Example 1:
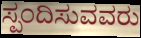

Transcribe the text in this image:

ಸ್ಪಂದಿಸುವವರು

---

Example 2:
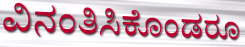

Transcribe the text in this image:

ವಿನಂತಿಸಿಕೊಂಡರೂ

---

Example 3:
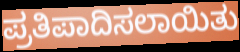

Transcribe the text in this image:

ಪ್ರತಿಪಾದಿಸಲಾಯಿತು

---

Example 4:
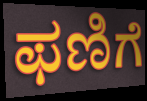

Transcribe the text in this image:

ಫಣಿಗೆ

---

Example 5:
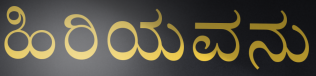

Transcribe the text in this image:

ಹಿರಿಯವನು